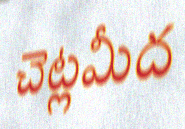
చెట్లమీద